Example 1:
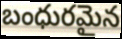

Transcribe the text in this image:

బంధురమైన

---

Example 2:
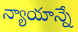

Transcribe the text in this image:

న్యాయాన్నే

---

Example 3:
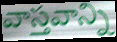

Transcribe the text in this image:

వాస్తవాన్ని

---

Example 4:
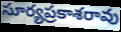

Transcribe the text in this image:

సూర్యప్రకాశరావు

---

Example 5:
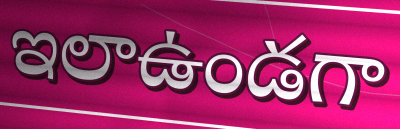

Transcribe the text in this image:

ఇలాఉండగా